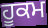
ਹੂਕਮ